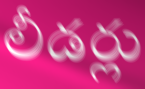
లీడర్లు